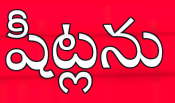
షీట్లను